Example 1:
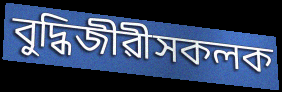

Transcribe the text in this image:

বুদ্ধিজীৱীসকলক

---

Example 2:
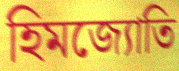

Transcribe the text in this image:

হিমজ্যোতি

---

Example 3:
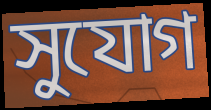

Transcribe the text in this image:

সুযোগ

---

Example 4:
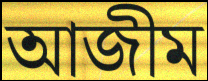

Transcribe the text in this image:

আজীম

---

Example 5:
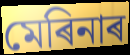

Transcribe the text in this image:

মেৰিনাৰ